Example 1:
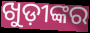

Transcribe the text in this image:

ଖୁଡ଼ୀଙ୍କର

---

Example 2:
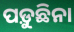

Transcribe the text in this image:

ପଡ଼ୁଛିନା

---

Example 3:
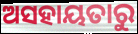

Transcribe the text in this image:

ଅସହାୟତାରୁ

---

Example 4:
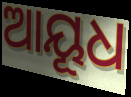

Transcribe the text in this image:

ଆୟୂଧ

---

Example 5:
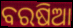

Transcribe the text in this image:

ବରଷିଆ